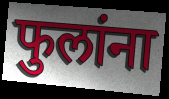
फुलांना